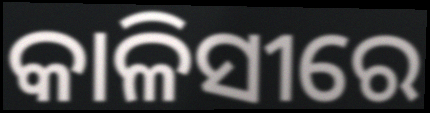
କାଳିସୀରେ